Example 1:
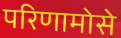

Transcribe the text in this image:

परिणामोसे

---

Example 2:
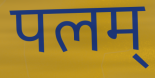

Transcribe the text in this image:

पलम्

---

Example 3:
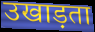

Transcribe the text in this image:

उखाड़ता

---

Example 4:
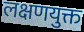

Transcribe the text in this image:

लक्षणयुक्त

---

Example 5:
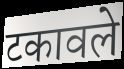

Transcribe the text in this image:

टकावले